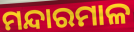
ମନ୍ଦାରମାଳ